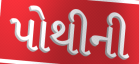
પોથીની